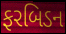
ફરબિડન